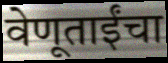
वेणूताईंचा